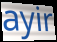
ayir